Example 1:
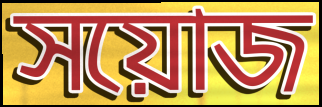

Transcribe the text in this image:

সয়োজ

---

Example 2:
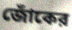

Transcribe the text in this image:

জোঁকের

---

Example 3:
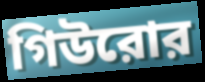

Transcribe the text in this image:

গিউরোর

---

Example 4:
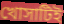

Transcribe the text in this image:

খোসাটিই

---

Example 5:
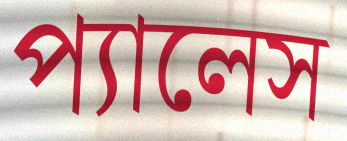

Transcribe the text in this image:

প্যালেস